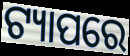
ଟ୍ୟାପରେ